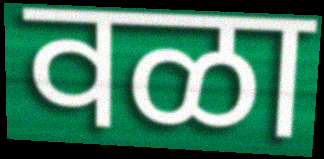
वळा